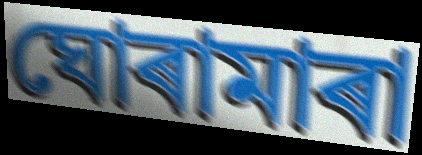
ঘোৰামাৰা